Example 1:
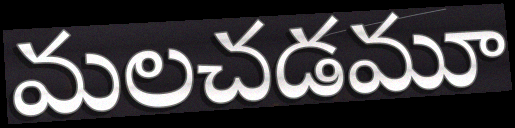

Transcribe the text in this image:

మలచడమూ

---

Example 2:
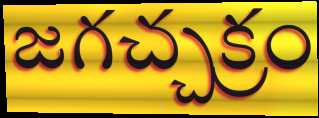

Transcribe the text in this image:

జగచ్చక్రం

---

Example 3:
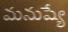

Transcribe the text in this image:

మనుష్యే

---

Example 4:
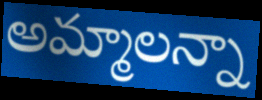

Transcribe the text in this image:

అమ్మాలన్నా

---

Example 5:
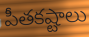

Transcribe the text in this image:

పీతకష్టాలు